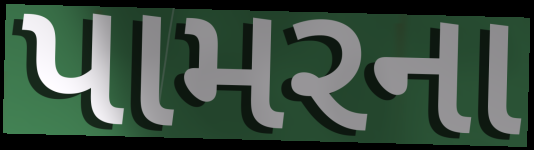
પામરના